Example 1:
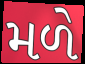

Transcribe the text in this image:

મળે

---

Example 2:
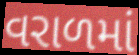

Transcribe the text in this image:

વરાળમાં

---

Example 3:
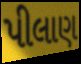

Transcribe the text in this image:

પીલાણ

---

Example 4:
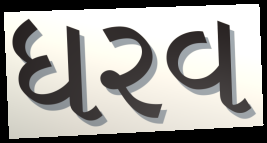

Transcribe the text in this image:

ધરવ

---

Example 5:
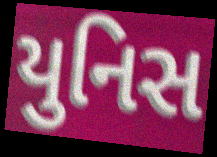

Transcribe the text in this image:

યુનિસ